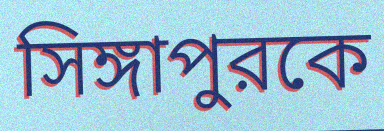
সিঙ্গাপুরকে